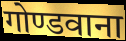
गोण्डवाना